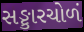
સઙ્કારચોળં